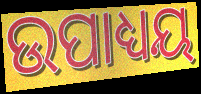
ଉପାଧ୍ୟୟ